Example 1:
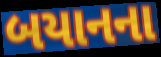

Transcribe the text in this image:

બયાનના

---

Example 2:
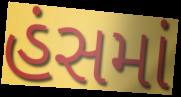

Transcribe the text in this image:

હંસમાં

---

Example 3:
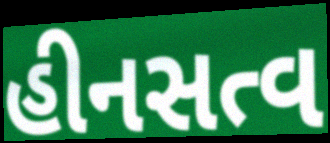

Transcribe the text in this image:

હીનસત્વ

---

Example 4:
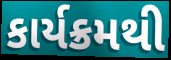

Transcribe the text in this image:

કાર્યક્રમથી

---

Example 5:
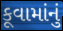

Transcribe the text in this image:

કૂવામાંનું